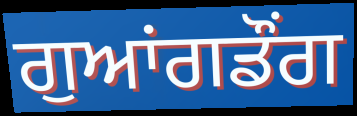
ਗੁਆਂਗਡੌਂਗ